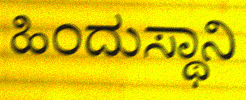
ಹಿಂದುಸ್ಥಾನಿ